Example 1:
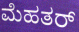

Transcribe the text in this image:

ಮೆಹತರ್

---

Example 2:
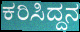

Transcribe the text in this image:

ಕರಿಸಿದ್ದನ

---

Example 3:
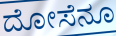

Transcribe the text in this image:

ದೋಸೆನೂ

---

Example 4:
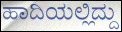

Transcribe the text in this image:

ಹಾದಿಯಲ್ಲಿದ್ದು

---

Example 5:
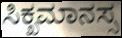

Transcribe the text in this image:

ಸಿಕ್ಖಮಾನಸ್ಸ